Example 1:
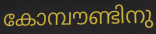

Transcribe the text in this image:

കോമ്പൗണ്ടിനു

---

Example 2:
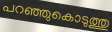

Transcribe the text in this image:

പറഞ്ഞുകൊടുത്തു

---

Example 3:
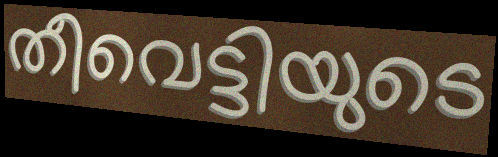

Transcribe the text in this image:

തീവെട്ടിയുടെ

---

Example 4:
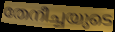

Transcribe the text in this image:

തേനീച്ചയുടെ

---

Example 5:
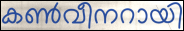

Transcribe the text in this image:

കൺവീനറായി